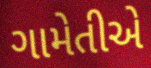
ગામેતીએ